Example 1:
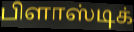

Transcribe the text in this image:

பிளாஸ்டிக்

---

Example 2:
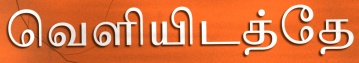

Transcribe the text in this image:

வெளியிடத்தே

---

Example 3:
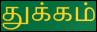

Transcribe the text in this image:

துக்கம்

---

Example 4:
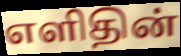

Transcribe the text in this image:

எளிதின்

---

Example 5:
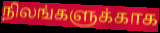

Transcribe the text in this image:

நிலங்களுக்காக